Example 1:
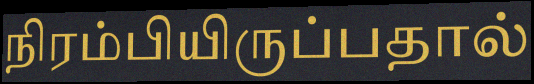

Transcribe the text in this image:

நிரம்பியிருப்பதால்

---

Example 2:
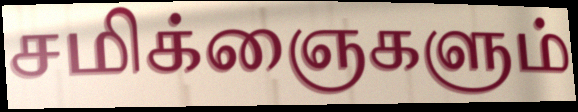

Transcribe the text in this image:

சமிக்ஞைகளும்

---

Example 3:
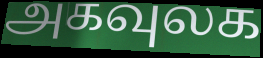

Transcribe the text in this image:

அகவுலக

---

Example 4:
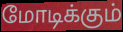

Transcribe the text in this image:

மோடிக்கும்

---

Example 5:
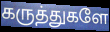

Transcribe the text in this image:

கருத்துகளே